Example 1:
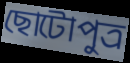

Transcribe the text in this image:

ছোটোপুত্র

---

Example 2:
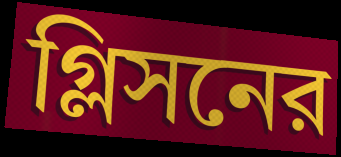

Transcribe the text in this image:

গ্লিসনের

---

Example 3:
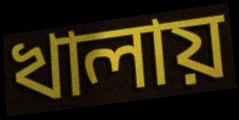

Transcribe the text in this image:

খালায়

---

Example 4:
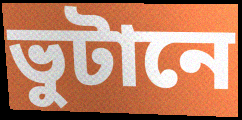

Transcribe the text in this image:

ভুটানে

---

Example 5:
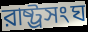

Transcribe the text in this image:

রাষ্ট্রসংঘ